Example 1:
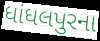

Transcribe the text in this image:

ધાંધલપુરના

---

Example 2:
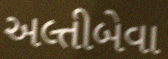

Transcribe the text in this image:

અલ્તીબેવા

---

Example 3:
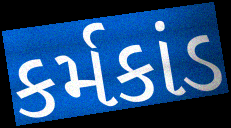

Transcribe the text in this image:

કર્મકાંડ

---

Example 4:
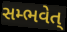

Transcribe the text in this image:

સમ્ભવેત્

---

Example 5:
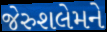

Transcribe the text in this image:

જેરુશલેમને